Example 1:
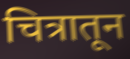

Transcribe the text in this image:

चित्रातून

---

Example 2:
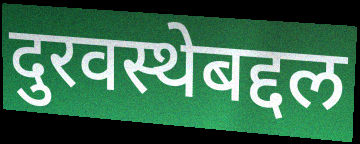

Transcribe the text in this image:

दुरवस्थेबद्दल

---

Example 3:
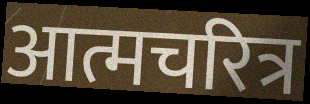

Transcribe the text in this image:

आत्मचरित्र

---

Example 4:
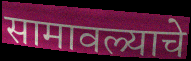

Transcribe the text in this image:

सामावल्याचे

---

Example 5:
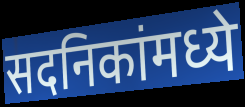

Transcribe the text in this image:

सदनिकांमध्ये